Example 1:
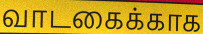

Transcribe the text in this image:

வாடகைக்காக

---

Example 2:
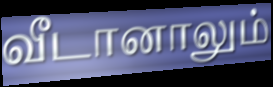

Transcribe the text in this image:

வீடானாலும்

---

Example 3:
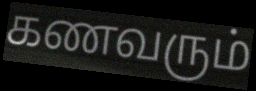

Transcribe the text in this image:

கணவரும்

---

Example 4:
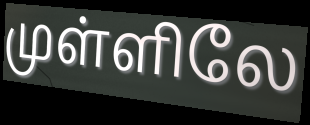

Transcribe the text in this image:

முள்ளிலே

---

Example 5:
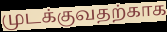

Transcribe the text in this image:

முடக்குவதற்காக